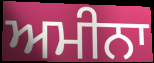
ਅਮੀਨਾ